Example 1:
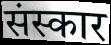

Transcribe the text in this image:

संस्‍कार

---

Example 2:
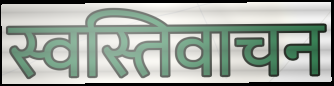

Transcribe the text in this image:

स्वस्तिवाचन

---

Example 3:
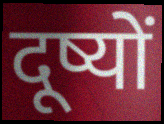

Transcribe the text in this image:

दूष्यों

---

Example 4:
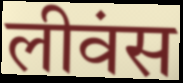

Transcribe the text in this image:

लीवंस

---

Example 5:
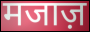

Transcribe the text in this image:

मजाज़